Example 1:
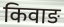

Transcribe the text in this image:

किवाङ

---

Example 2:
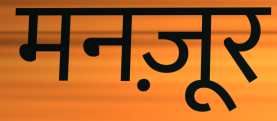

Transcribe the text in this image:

मनज़ूर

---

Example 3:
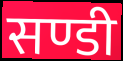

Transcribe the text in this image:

सण्डी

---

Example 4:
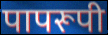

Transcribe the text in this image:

पापरूपी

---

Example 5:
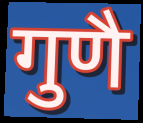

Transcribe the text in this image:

गुणै